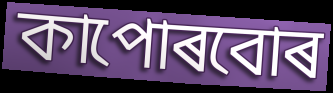
কাপোৰবোৰ